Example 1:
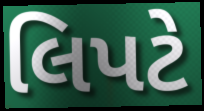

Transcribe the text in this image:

લિપટે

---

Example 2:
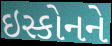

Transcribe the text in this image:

ઇસ્કોનને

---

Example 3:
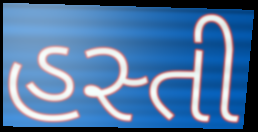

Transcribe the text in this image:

હસ્તી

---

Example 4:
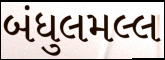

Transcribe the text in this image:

બંધુલમલ્લ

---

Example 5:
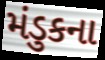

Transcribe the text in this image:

મંડુકના